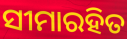
ସୀମାରହିତ